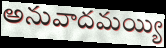
అనువాదమయ్యి